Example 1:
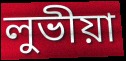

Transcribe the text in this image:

লুভীয়া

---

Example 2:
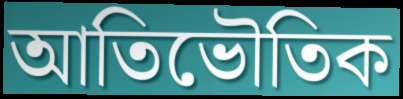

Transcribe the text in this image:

আতিভৌতিক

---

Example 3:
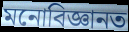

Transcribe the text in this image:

মনোবিজ্ঞানত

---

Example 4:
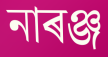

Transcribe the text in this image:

নাৰঞ্জ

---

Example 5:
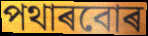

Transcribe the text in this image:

পথাৰবোৰ